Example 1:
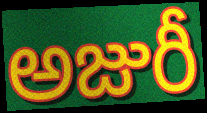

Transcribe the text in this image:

అజురీ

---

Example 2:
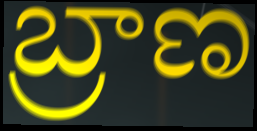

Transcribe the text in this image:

బ్రాణ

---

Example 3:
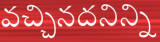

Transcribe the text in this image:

వచ్చినదనిన్ని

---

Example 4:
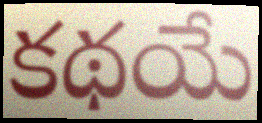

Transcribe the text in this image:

కథయే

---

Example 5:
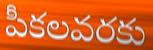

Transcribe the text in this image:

పీకలవరకు